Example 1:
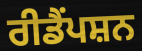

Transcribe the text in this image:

ਰੀਡੈਂਪਸ਼ਨ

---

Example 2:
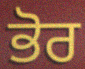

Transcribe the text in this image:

ਭੋਰ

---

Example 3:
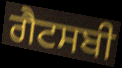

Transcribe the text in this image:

ਗੈਟਸਬੀ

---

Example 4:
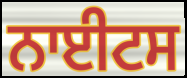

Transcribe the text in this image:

ਨਾਈਟਸ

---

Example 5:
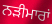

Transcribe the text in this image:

ਨੜੀਮਾਰਾਂ